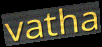
vatha